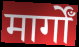
मार्गोँ